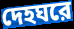
দেহঘরে